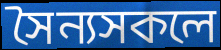
সৈন্যসকলে